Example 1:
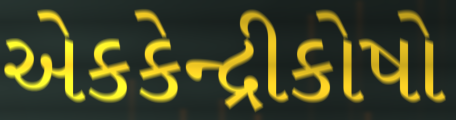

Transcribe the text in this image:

એકકેન્દ્રીકોષો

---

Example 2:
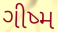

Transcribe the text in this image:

ગીષ્મ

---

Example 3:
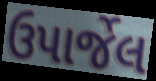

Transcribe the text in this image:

ઉપાર્જેલ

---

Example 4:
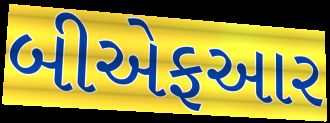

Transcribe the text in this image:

બીએફઆર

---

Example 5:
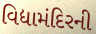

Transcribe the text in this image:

વિદ્યામંદિરની